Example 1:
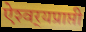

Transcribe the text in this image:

ऐश्वर्यप्राप्ती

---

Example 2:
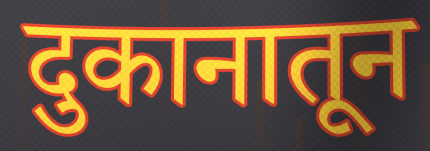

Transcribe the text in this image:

दुकानातून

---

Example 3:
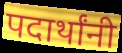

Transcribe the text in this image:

पदार्थांनी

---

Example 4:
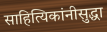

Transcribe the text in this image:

साहित्यिकांनीसुद्धा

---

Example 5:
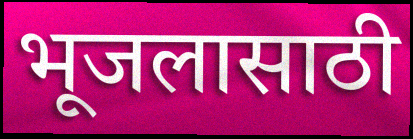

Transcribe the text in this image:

भूजलासाठी